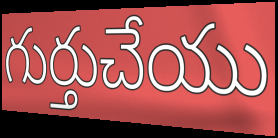
గుర్తుచేయు